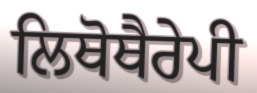
ਲਿਥੋਥੈਰੇਪੀ